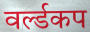
वर्ल्‍डकप